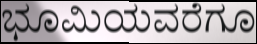
ಭೂಮಿಯವರೆಗೂ